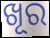
ଖୂର